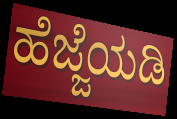
ಹೆಜ್ಜೆಯಡಿ